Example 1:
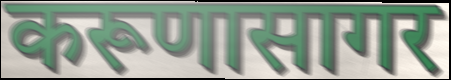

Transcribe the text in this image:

करूणासागर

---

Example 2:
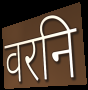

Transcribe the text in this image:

वरनि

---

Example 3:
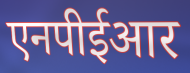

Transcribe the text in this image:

एनपीईआर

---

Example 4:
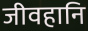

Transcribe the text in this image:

जीवहानि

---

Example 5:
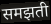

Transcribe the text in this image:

समझती